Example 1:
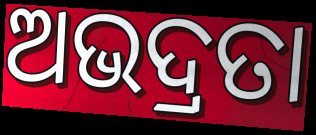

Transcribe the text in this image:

ଅଭଦ୍ରତା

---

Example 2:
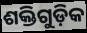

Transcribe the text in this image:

ଶକ୍ତିଗୁଡ଼ିକ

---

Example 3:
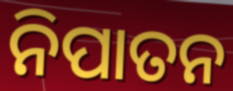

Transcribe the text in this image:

ନିପାତନ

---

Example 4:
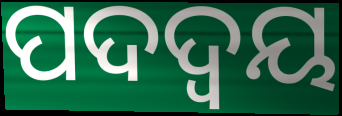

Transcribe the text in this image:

ପଦଦ୍ଵୟ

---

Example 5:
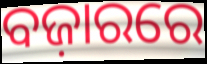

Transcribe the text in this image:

ବଜ଼ାରରେ